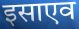
इसाएव